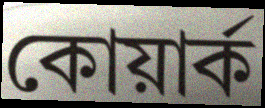
কোয়ার্ক